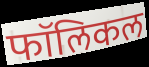
फॉलिकल